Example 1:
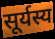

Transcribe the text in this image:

सूर्यस्य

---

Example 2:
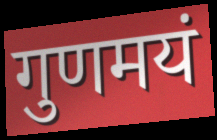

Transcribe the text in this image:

गुणमयं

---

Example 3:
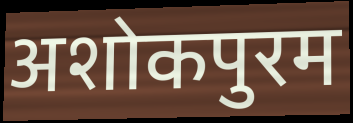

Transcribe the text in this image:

अशोकपुरम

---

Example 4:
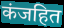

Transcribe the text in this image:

कंजहित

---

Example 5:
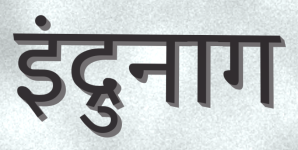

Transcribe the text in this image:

इंद्रुनाग